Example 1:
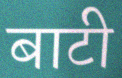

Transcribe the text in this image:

बाटी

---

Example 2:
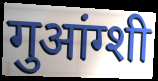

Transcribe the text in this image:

गुआंग्शी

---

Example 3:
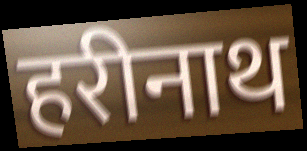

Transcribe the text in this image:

हरीनाथ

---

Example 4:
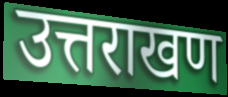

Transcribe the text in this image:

उत्तराखण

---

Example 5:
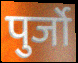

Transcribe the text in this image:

पुर्जो